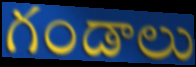
గండాలు